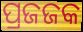
ପ୍ରଜଜକ